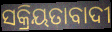
ସକ୍ରିୟତାବାଦୀ